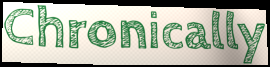
Chronically